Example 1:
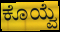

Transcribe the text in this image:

ಕೊಯ್ವೆ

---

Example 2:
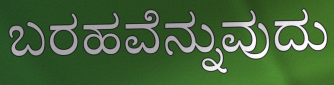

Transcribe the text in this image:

ಬರಹವೆನ್ನುವುದು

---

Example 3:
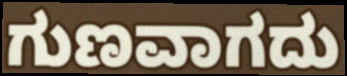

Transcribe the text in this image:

ಗುಣವಾಗದು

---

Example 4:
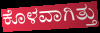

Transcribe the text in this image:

ಕೊಳವಾಗಿತ್ತು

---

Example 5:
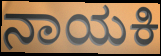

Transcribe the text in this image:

ನಾಯಕಿ